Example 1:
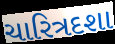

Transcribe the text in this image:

ચારિત્રદશા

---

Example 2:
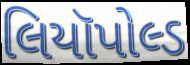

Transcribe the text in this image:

લિયૉપોલ્ડ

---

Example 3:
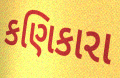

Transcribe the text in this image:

કણિકારા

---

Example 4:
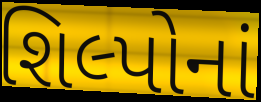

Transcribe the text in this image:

શિલ્પોનાં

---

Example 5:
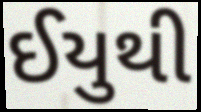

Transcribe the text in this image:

ઈયુથી